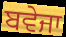
ਬਵੇਜਾ